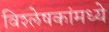
विश्लेषकांमध्ये